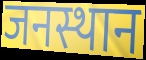
जनस्थान